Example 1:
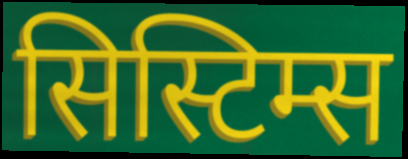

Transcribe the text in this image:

सिस्टिम्स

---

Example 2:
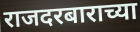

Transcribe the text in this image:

राजदरबाराच्या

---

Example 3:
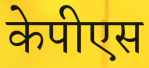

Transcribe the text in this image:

केपीएस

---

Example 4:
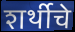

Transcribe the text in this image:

शर्थीचे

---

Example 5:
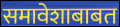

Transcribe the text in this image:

समावेशाबाबत